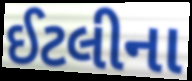
ઈટલીના